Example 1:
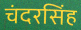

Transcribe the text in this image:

चंदरसिंह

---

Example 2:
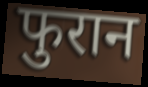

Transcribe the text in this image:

फुरान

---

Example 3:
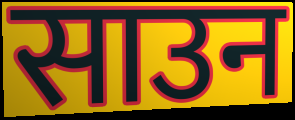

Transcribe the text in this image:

साउन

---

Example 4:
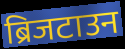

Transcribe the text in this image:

ब्रिजटाउन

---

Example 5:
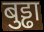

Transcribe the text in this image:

बुड्ढा